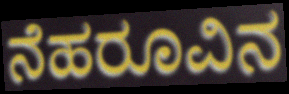
ನೆಹರೂವಿನ